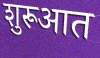
शुरूआत